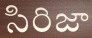
సిరిజా